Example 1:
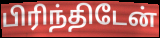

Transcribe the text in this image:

பிரிந்திடேன்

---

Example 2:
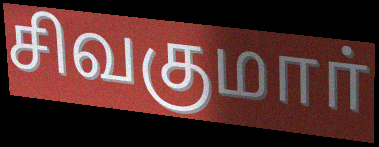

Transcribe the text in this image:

சிவகுமார்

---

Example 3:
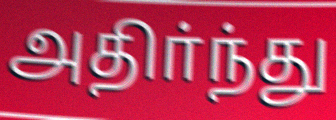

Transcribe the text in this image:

அதிர்ந்து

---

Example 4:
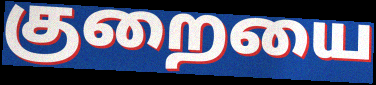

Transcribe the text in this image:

குறையை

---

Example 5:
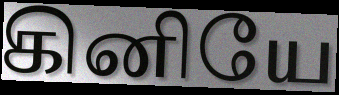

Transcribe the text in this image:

கினியே